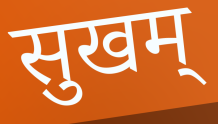
सुखम्